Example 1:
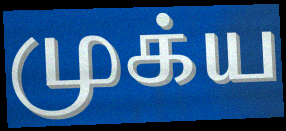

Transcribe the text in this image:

முக்ய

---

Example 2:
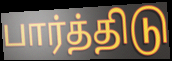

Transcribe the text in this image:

பார்த்திடு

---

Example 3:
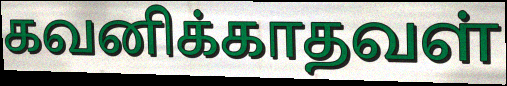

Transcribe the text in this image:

கவனிக்காதவள்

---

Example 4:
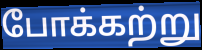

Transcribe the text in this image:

போக்கற்று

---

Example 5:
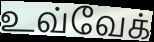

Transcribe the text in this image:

உவ்வேக்